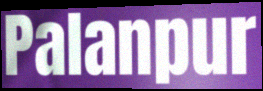
Palanpur